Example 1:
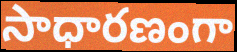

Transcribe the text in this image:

సాధారణంగా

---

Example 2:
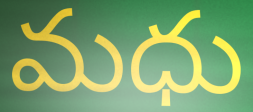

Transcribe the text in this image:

మధు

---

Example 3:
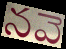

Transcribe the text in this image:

నవె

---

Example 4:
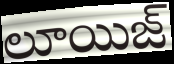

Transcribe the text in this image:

లూయిజ్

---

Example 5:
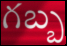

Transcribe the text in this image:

గబ్బ